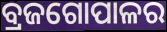
ବ୍ରଜଗୋପାଳର